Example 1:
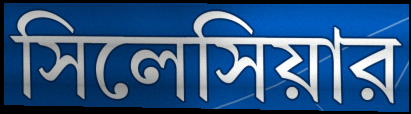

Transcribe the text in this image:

সিলেসিয়ার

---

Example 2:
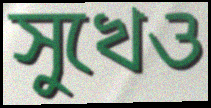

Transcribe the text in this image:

সুখেও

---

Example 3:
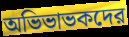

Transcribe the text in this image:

অভিভাভকদের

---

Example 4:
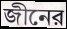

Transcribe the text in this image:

জীনের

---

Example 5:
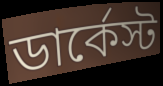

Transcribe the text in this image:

ডার্কেস্ট